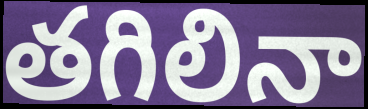
తగిలినా